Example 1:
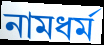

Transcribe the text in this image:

নামধৰ্ম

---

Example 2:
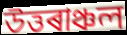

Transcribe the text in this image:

উত্তৰাঞ্চল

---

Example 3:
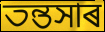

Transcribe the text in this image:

তন্তসাৰ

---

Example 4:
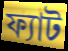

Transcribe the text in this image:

ফ্যাট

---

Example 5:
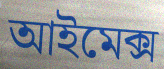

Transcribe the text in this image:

আইমেক্স